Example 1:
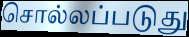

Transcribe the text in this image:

சொல்லப்படுது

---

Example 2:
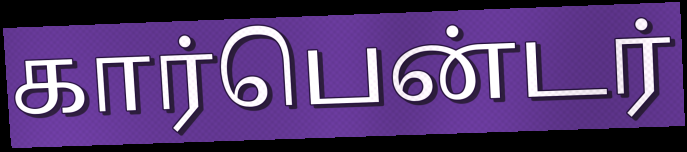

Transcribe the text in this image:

கார்பென்டர்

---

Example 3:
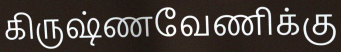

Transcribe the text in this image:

கிருஷ்ணவேணிக்கு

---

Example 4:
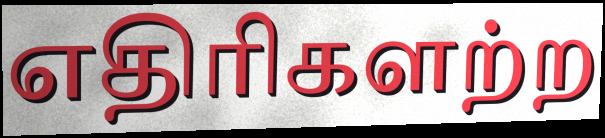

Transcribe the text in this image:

எதிரிகளற்ற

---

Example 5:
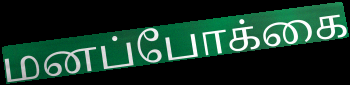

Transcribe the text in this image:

மனப்போக்கை